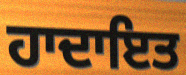
ਹਾਦਾਇਤ